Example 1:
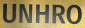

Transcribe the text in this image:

UNHRO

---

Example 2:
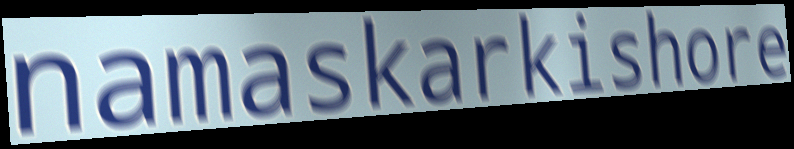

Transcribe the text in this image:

namaskarkishore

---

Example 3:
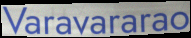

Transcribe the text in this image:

Varavararao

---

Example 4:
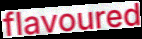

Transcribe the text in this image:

flavoured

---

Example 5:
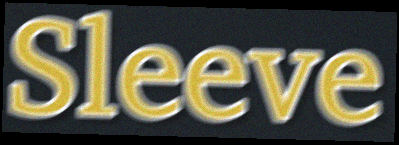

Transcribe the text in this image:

Sleeve